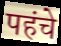
पहंचे